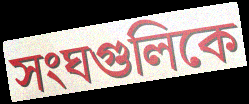
সংঘগুলিকে